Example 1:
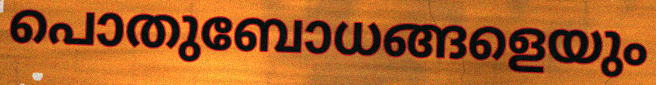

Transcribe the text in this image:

പൊതുബോധങ്ങളെയും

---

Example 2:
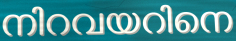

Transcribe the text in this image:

നിറവയറിനെ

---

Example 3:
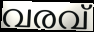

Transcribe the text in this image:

വരവ്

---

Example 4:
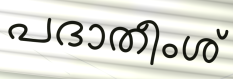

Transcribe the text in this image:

പദാതീംശ്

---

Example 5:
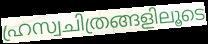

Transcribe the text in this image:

ഹ്രസ്വചിത്രങ്ങളിലൂടെ